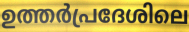
ഉത്തർപ്രദേശിലെ